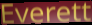
Everett